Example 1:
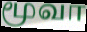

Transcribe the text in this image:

மூவா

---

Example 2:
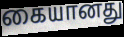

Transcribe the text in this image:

கையானது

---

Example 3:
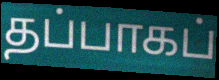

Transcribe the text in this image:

தப்பாகப்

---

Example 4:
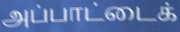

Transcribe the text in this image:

அப்பாட்டைக்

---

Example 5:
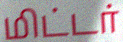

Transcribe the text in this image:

மிட்டர்